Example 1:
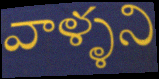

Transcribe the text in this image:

వాళ్ళని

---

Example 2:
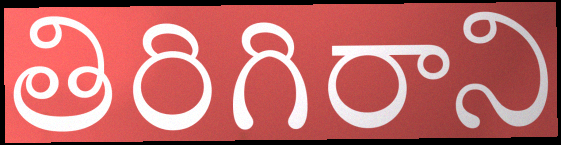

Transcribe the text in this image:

తిరిగిరాని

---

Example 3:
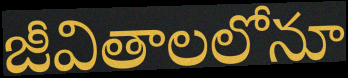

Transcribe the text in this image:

జీవితాలలోనూ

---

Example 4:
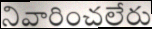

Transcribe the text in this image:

నివారించలేరు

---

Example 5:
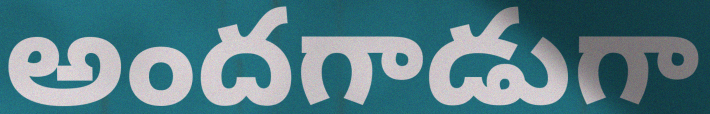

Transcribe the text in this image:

అందగాడుగా